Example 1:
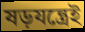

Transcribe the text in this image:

ষড়যন্ত্রেই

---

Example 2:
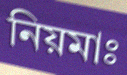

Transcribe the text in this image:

নিয়মাঃ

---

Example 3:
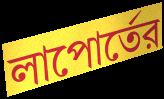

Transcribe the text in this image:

লাপোর্তের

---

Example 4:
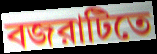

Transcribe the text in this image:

বজরাটিতে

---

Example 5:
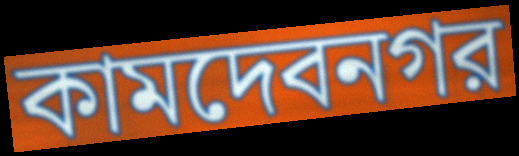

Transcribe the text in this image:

কামদেবনগর